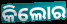
କିଲୋର